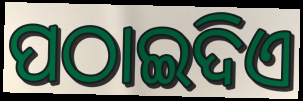
ପଠାଇଦିଏ